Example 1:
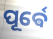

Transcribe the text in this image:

ପୂର୍ଵେ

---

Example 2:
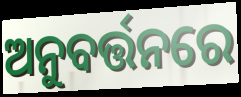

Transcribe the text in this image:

ଅନୁବର୍ତ୍ତନରେ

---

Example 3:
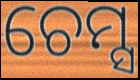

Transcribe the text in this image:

ଚେମ୍ସ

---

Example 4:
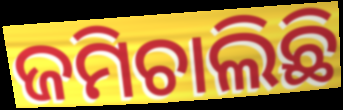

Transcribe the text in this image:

ଜମିଚାଲିଛି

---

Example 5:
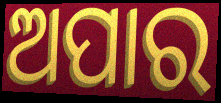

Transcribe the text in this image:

ଅପାର